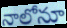
నాలోనూ